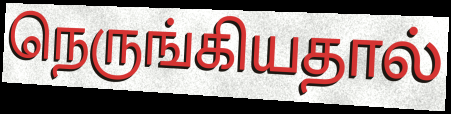
நெருங்கியதால்